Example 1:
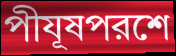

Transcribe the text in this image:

পীযূষপরশে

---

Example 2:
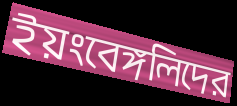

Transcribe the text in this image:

ইয়ংবেঙ্গলিদের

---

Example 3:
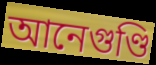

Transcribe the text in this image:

আনেগুণ্ডি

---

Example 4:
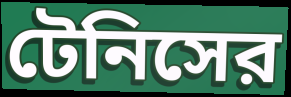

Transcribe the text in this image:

টেনিসের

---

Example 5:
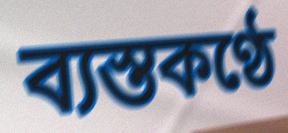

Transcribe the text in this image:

ব্যস্তকণ্ঠে